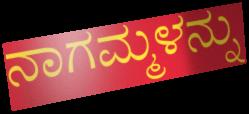
ನಾಗಮ್ಮಳನ್ನು